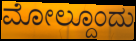
ಮೋಲ್ದೂಂದು